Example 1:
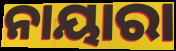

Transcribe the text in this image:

ନାୟାରା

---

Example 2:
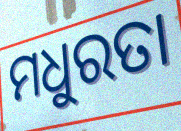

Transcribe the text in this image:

ମଧୁରତା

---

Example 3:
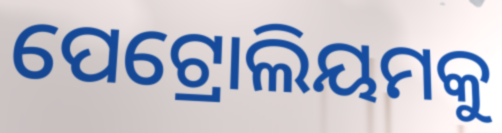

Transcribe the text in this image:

ପେଟ୍ରୋଲିୟମକୁ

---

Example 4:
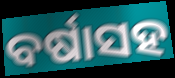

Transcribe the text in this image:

ବର୍ଷାସହ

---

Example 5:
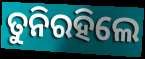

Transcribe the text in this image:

ତୁନିରହିଲେ